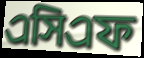
এসিএফ